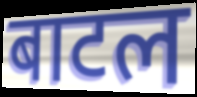
बाटल